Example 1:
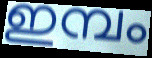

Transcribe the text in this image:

ഇമ്പം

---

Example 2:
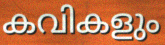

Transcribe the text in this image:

കവികളും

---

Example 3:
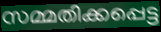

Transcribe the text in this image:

സമ്മതിക്കപ്പെട്ട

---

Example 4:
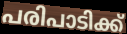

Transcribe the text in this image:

പരിപാടിക്ക്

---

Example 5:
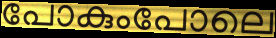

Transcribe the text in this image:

പോകുംപോലെ